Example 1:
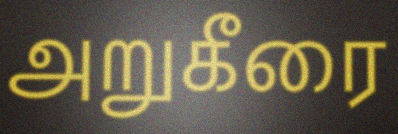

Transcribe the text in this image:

அறுகீரை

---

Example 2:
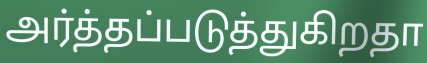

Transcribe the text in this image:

அர்த்தப்படுத்துகிறதா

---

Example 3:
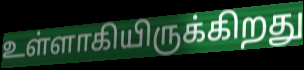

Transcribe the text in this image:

உள்ளாகியிருக்கிறது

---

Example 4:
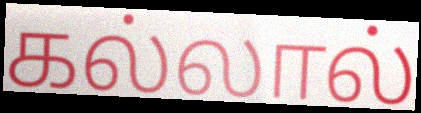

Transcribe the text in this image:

கல்லால்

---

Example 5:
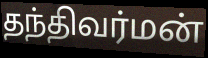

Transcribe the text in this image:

தந்திவர்மன்